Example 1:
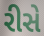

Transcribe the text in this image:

રીસે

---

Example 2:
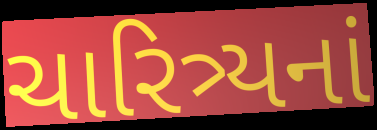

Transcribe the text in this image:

ચારિત્ર્યનાં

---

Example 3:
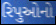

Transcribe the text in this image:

રિપુઓનો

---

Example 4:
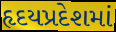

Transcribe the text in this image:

હૃદયપ્રદેશમાં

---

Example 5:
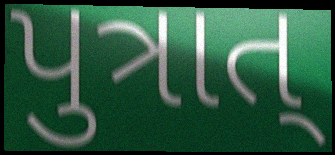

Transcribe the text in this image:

પુત્રાત્